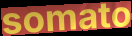
somato